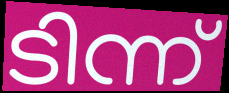
ടിന്ന്